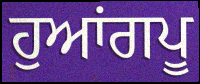
ਹੁਆਂਗਪੂ